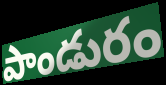
పాండురం